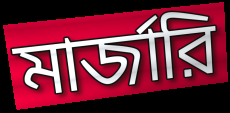
মার্জারি